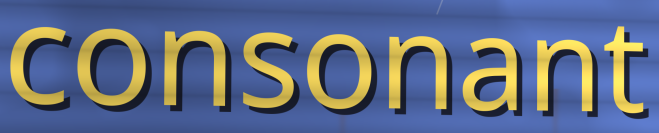
consonant